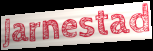
Jarnestad